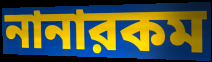
নানারকম